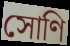
সোণি